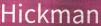
Hickman